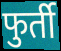
फुर्ती